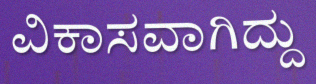
ವಿಕಾಸವಾಗಿದ್ದು